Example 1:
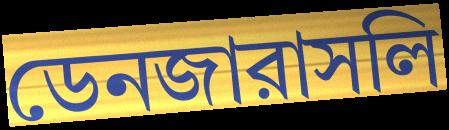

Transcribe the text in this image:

ডেনজারাসলি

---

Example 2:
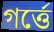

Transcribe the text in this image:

গর্ত্তে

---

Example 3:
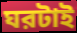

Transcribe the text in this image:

ঘরটাই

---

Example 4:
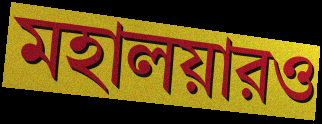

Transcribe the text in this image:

মহালয়ারও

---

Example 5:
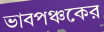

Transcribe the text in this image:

ভাবপঞ্চকের